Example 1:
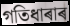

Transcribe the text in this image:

গতিধাৰাৰ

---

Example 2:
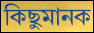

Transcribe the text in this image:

কিছুমানক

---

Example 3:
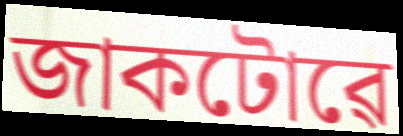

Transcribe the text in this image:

জাকটোৱে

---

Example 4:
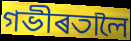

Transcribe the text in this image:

গভীৰতালৈ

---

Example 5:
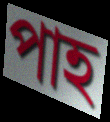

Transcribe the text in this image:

পাহ